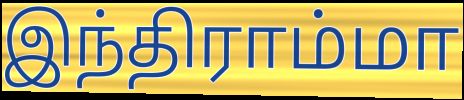
இந்திராம்மா